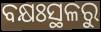
ବକ୍ଷଃସ୍ଥଳରୁ